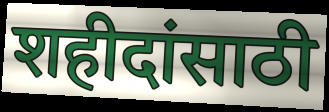
शहीदांसाठी